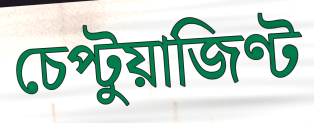
চেপ্টুয়াজিণ্ট